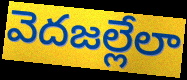
వెదజల్లేలా